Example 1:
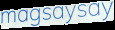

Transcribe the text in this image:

magsaysay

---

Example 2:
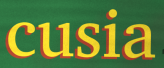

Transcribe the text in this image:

cusia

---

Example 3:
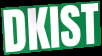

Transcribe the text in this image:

DKIST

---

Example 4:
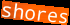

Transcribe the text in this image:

shores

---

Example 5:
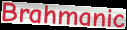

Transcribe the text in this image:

Brahmanic